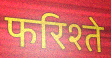
फरिश्ते